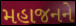
મહાજનને